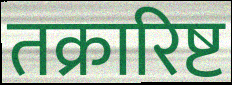
तक्रारिष्ट